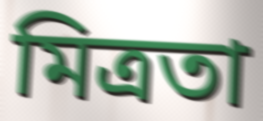
মিত্ৰতা